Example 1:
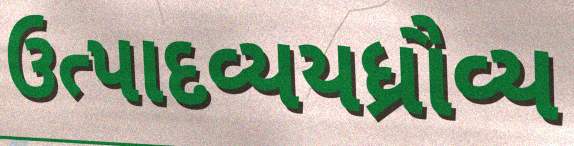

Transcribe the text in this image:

ઉત્પાદવ્યયધ્રૌવ્ય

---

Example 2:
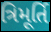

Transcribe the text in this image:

ત્રિમૂર્તિ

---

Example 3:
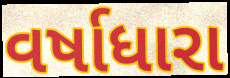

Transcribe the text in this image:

વર્ષાધારા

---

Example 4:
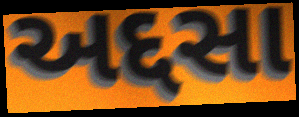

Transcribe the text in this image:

અદ્દસા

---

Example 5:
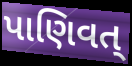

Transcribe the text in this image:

પાણિવત્